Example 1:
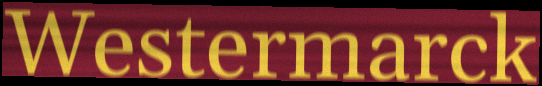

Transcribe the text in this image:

Westermarck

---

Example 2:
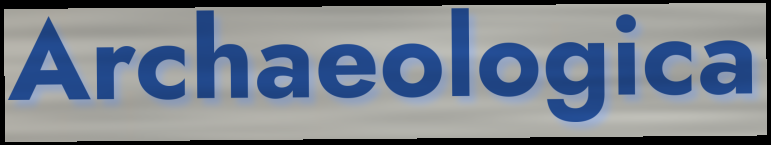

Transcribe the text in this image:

Archaeologica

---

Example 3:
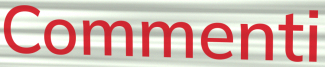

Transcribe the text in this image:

Commenti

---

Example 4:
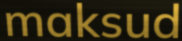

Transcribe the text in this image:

maksud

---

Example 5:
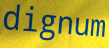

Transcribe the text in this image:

dignum